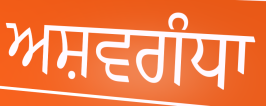
ਅਸ਼ਵਗੰਧਾ